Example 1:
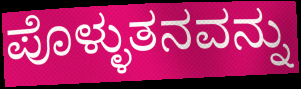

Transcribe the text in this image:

ಪೊಳ್ಳುತನವನ್ನು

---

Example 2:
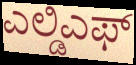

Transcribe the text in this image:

ಎಲ್ಡಿಎಫ್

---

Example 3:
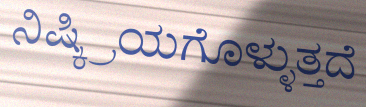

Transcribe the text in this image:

ನಿಷ್ಕ್ರಿಯಗೊಳ್ಳುತ್ತದೆ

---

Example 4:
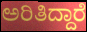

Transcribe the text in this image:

ಅರಿತಿದ್ದಾರೆ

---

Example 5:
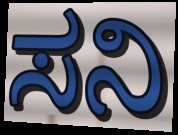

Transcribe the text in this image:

ಸನಿ